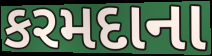
કરમદાના